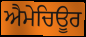
ਐਮੇਚਿਊਰ